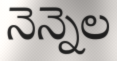
నెన్నెల